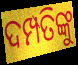
ଦମ୍ପତିଙ୍କୁ